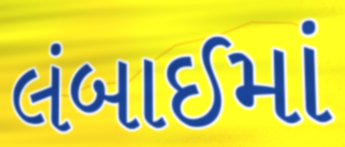
લંબાઈમાં